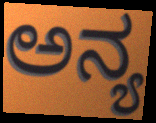
ಅನ್ಯ